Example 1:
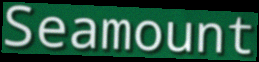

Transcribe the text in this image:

Seamount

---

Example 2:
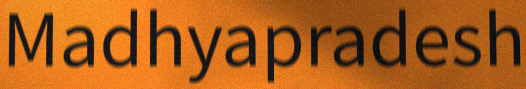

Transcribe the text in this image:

Madhyapradesh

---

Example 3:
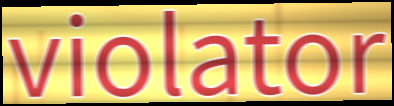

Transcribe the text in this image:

violator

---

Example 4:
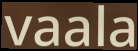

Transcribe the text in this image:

vaala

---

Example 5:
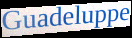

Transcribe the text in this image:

Guadeluppe